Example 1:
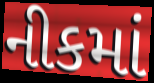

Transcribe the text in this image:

નીકમાં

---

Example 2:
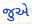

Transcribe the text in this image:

જુએ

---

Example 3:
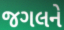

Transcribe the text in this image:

જગલને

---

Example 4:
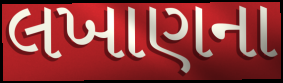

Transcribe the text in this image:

લખાણના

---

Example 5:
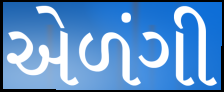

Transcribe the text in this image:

એળંગી